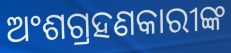
ଅଂଶଗ୍ରହଣକାରୀଙ୍କ